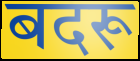
बदरू